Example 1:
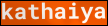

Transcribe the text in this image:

kathaiya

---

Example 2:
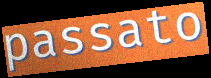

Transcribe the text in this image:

passato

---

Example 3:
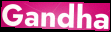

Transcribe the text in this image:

Gandha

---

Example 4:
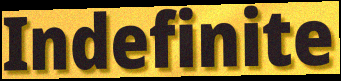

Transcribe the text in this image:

Indefinite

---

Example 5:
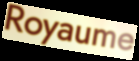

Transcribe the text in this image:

Royaume